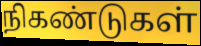
நிகண்டுகள்